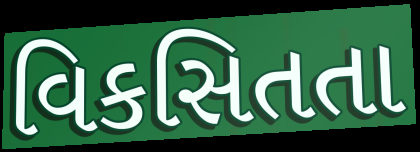
વિકસિતતા